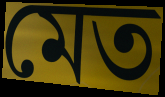
মেত